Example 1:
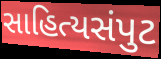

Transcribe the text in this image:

સાહિત્યસંપુટ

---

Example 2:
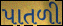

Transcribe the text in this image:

પાતળી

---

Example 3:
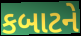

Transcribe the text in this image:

કબાટને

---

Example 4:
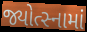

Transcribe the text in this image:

જ્યોત્સ્નામાં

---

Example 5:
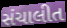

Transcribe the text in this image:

સંચાલીત